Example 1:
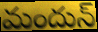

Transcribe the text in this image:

మందున్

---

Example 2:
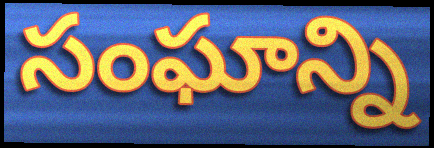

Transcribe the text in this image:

సంఘాన్ని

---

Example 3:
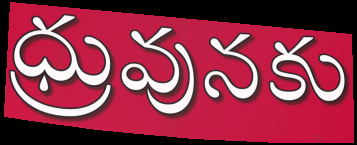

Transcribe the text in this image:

ధ్రువునకు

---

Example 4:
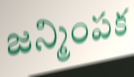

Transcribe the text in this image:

జన్మింపక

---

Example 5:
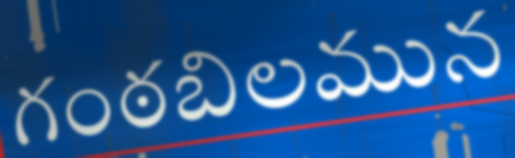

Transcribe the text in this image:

గంఠబిలమున